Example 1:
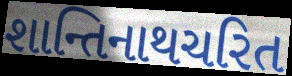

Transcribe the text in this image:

શાન્તિનાથચરિત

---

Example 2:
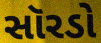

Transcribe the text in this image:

સૉરડો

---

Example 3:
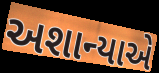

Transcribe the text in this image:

અશાન્યાએ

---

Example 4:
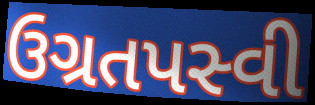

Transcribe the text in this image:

ઉગ્રતપસ્વી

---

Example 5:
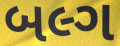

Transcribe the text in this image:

બલ્ગ